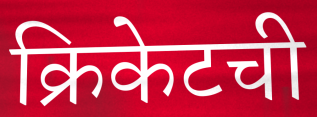
क्रिकेटची